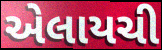
એલાયચી